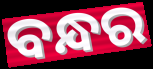
ବନ୍ଧର